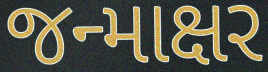
જન્માક્ષર